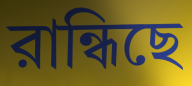
রান্ধিছে